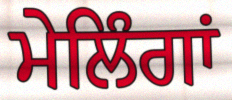
ਮੇਲਿੰਗਾਂ